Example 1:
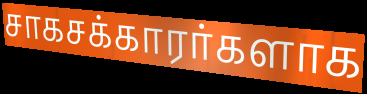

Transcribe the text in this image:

சாகசக்காரர்களாக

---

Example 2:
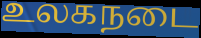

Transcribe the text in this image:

உலகநடை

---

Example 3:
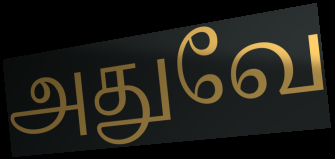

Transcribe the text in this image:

அதுவே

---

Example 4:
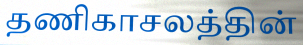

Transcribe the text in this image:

தணிகாசலத்தின்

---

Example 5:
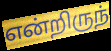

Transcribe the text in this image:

என்றிருந்